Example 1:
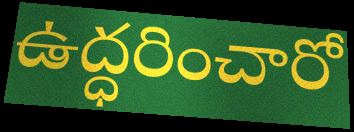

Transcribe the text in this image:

ఉద్ధరించారో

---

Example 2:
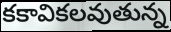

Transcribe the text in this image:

కకావికలవుతున్న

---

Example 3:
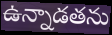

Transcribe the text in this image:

ఉన్నాడతను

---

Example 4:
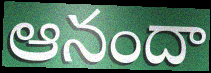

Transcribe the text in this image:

ఆనందా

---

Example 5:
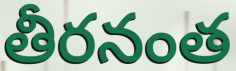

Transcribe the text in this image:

తీరనంత